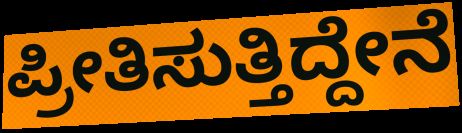
ಪ್ರೀತಿಸುತ್ತಿದ್ದೇನೆ